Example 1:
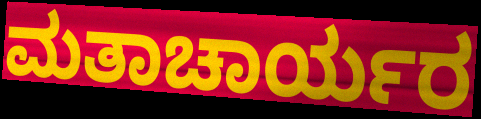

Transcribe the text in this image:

ಮತಾಚಾರ್ಯರ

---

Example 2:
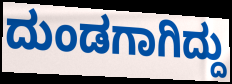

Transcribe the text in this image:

ದುಂಡಗಾಗಿದ್ದು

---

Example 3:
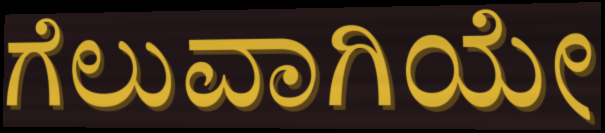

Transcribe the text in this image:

ಗೆಲುವಾಗಿಯೇ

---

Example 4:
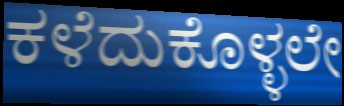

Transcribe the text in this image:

ಕಳೆದುಕೊಳ್ಳಲೇ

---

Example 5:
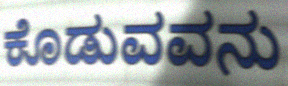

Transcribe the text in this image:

ಕೊಡುವವನು